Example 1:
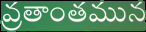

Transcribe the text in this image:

వ్రతాంతమున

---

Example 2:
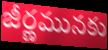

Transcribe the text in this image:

జీర్ణమునకు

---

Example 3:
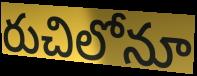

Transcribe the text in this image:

రుచిలోనూ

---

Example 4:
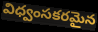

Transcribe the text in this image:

విధ్వంసకరమైన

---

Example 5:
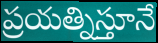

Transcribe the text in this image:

ప్రయత్నిస్తూనే